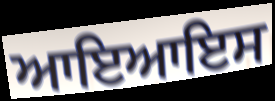
ਆਇਆਇਸ